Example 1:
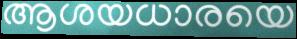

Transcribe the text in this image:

ആശയധാരയെ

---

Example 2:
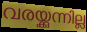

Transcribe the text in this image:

വരയ്ക്കുന്നില്ല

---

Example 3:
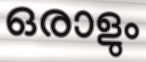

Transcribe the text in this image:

ഒരാളും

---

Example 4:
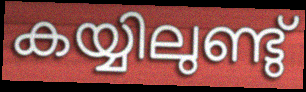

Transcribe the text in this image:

കയ്യിലുണ്ടു്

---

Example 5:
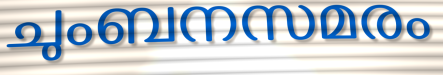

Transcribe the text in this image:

ചുംബനസമരം